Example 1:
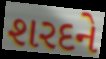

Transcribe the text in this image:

શરદને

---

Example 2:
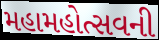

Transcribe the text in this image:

મહામહોત્સવની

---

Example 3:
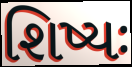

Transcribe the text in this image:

શિષ્યઃ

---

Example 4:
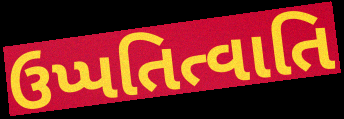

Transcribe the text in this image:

ઉપ્પતિત્વાતિ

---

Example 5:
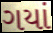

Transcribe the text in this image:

ગયાં